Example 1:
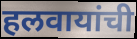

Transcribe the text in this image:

हलवायांची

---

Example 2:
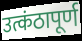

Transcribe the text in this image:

उत्कंठापूर्ण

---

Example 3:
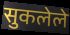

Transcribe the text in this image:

सुकलेले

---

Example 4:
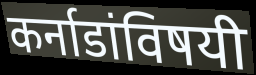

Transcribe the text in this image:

कर्नाडांविषयी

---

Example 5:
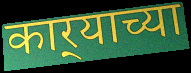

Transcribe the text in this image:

कार्याच्या